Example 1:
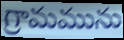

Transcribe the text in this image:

గ్రామమును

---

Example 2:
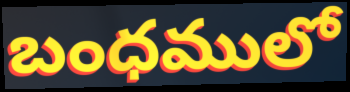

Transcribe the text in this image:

బంధములో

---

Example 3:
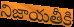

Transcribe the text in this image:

నిజాయతీకి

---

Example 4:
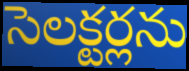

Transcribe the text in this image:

సెలక్టర్లను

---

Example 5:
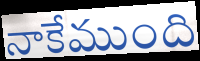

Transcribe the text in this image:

నాకేముంది